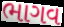
ભાગવ